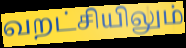
வறட்சியிலும்